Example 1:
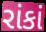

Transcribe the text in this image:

રાંકાં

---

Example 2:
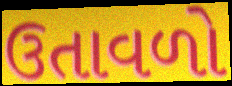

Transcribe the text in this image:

ઉતાવળો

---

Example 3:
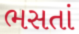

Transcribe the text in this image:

ભસતાં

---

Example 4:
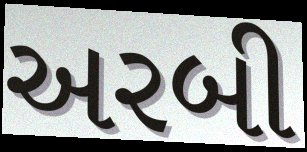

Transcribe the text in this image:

અરબી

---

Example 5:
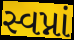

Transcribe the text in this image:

સ્વપ્નાં